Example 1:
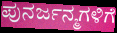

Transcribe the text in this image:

ಪುನರ್ಜನ್ಮಗಳಿಗೆ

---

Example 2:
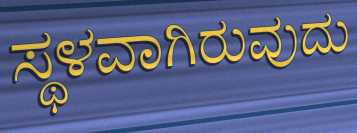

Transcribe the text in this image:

ಸ್ಥಳವಾಗಿರುವುದು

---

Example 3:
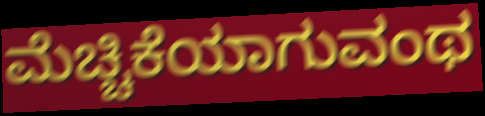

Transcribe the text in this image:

ಮೆಚ್ಚಿಕೆಯಾಗುವಂಥ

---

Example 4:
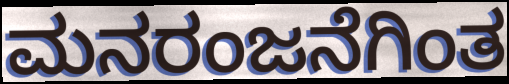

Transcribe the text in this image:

ಮನರಂಜನೆಗಿಂತ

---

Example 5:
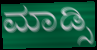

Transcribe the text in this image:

ಮಾಡ್ಸಿ